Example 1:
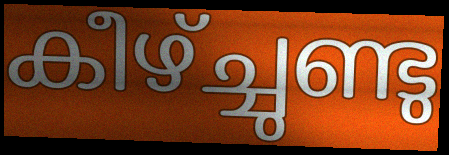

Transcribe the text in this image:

കീഴ്ച്ചുണ്ടു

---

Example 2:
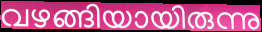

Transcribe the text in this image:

വഴങ്ങിയായിരുന്നു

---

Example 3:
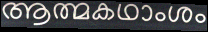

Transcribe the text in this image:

ആത്മകഥാംശം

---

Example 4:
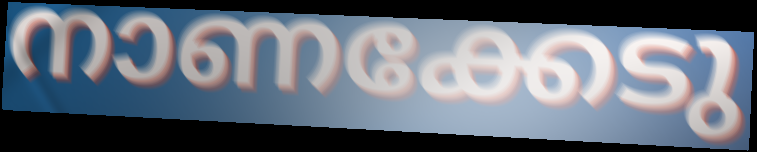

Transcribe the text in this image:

നാണക്കേടു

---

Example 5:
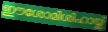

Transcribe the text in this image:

ഈശോമിശിഹായ്ക്ക്